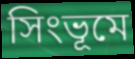
সিংভূমে